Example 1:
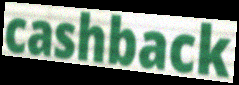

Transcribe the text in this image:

cashback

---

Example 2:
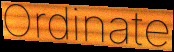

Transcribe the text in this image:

Ordinate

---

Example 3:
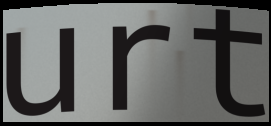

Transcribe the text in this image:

urt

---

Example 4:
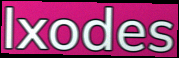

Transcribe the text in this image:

Ixodes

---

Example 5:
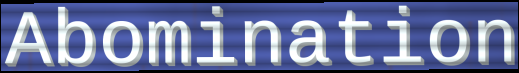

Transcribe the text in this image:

Abomination